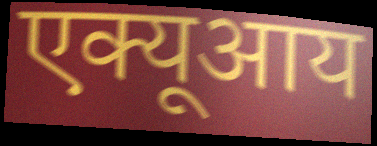
एक्यूआय